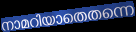
നാമറിയാതെതന്നെ